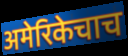
अमेरिकेचाच